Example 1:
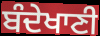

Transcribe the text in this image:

ਬੰਦੇਖਾਣੀ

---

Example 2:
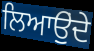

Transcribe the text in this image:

ਲਿਆਉੁਂਦੇ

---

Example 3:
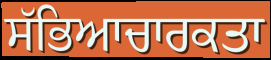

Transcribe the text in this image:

ਸੱਭਿਆਚਾਰਕਤਾ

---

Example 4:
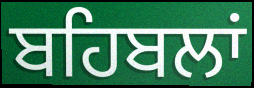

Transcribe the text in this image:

ਬਹਿਬਲਾਂ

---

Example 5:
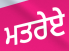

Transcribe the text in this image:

ਮਤਰੇਏ